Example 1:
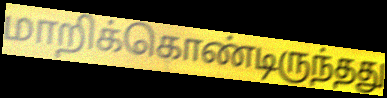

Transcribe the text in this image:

மாறிக்கொண்டிருந்தது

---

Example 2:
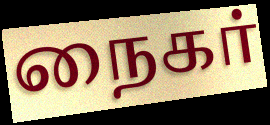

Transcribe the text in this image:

நைகர்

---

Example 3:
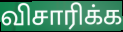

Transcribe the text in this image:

விசாரிக்க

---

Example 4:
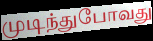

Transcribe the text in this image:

முடிந்துபோவது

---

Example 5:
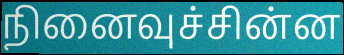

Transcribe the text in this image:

நினைவுச்சின்ன